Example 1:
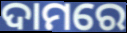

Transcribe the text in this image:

ଦାମରେ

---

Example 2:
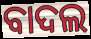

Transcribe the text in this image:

ବାଦଲ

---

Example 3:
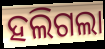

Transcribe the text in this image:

ହଲିଗଲା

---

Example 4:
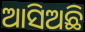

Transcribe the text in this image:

ଆସିଅଛି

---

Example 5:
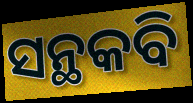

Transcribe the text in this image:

ସନ୍ଥକବି